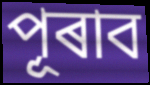
পূৰাব